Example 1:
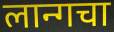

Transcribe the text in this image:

लान्गचा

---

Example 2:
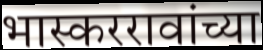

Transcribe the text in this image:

भास्कररावांच्या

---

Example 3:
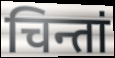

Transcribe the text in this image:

चिन्तां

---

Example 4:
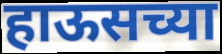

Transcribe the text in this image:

हाऊसच्या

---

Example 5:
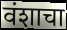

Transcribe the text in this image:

वंशाचा